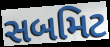
સબમિટ